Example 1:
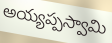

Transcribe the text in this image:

అయ్యప్పస్వామి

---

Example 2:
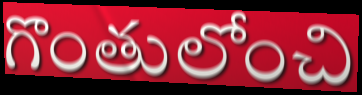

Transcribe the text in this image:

గొంతులోంచి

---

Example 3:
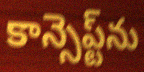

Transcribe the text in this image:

కాన్సెప్ట్‌ను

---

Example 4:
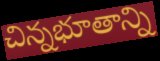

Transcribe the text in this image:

చిన్నభూతాన్ని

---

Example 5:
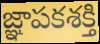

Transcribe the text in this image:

జ్ఞాపకశక్తి